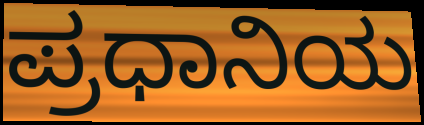
ಪ್ರಧಾನಿಯ